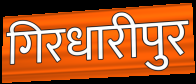
गिरधारीपुर